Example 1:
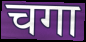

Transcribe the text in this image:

चगा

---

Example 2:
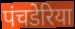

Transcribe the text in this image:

पंचडेरिया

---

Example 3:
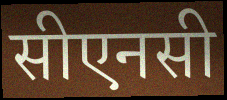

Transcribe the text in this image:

सीएनसी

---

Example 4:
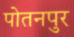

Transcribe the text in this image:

पोतनपुर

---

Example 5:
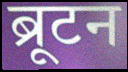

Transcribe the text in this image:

ब्रूटन